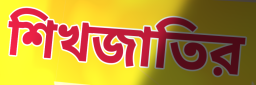
শিখজাতির